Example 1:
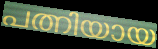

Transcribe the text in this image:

പത്നിയായ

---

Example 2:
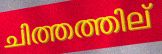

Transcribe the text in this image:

ചിത്തത്തില്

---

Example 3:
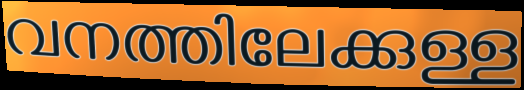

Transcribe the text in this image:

വനത്തിലേക്കുള്ള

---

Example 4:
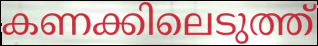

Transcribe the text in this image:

കണക്കിലെടുത്ത്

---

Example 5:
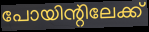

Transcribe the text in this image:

പോയിന്റിലേക്ക്